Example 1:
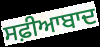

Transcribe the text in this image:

ਸਫ਼ੀਆਬਾਦ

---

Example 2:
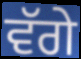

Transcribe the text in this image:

ਵੱਗੇ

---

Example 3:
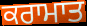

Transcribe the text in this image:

ਕਰਾਮਾਤ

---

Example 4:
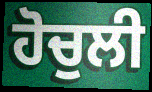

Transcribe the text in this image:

ਹੋਚੁਲੀ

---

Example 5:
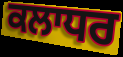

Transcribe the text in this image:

ਕਲਾਧਰ